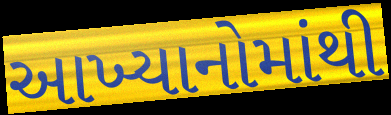
આખ્યાનોમાંથી